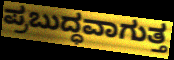
ಪ್ರಬುದ್ಧವಾಗುತ್ತ